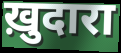
ख़ुदारा